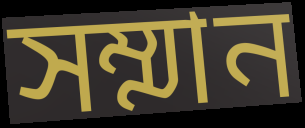
সম্মান